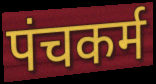
पंचकर्म